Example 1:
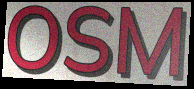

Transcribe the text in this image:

OSM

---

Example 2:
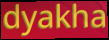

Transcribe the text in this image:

dyakha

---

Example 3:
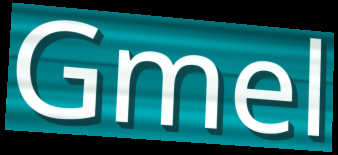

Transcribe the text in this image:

Gmel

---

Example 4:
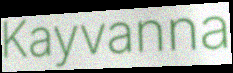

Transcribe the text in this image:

Kayvanna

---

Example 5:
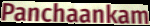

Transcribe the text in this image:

Panchaankam